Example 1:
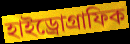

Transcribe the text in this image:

হাইড্রোগ্রাফিক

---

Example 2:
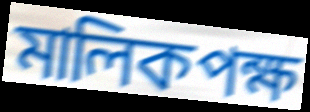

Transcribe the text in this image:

মালিকপক্ষ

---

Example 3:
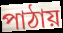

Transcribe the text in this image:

পাঠায়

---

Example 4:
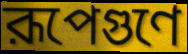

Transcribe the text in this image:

রূপেগুণে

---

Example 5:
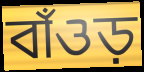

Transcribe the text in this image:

বাঁওড়